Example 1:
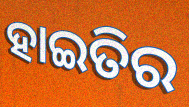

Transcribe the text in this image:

ହାଇତିର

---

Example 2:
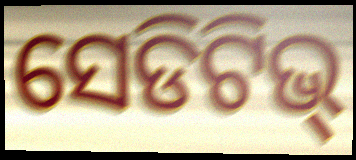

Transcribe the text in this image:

ସେଡିଟିଭ୍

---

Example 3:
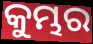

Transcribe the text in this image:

କୁମ୍ଭର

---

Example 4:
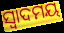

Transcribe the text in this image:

ସ୍ଵାଦମୟ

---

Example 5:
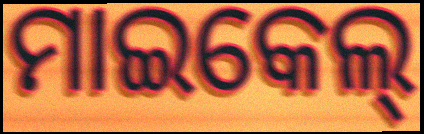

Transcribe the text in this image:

ମାଇକେଲ୍